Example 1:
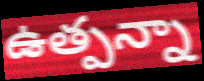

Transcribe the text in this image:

ఉత్పన్నా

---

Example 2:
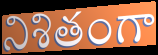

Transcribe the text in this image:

నిశితంగా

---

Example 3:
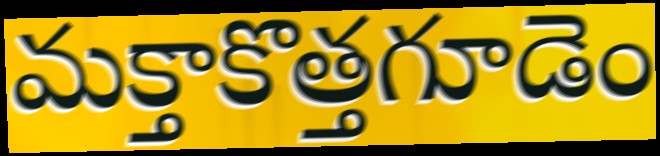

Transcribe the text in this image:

మక్తాకొత్తగూడెం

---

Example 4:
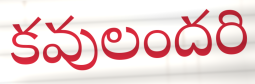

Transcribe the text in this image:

కవులందరి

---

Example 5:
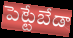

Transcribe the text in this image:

పెట్టేబేడా